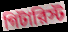
গিটারিস্ট